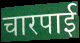
चारपाई